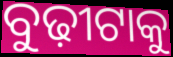
ବୁଢ଼ୀଟାକୁ